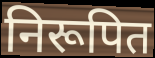
निरूपित